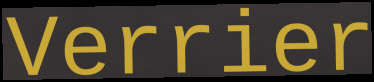
Verrier